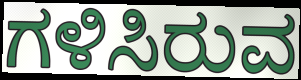
ಗಳಿಸಿರುವ